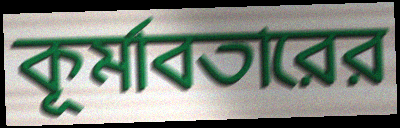
কূর্মাবতারের